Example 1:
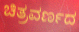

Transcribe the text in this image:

ಚಿತ್ರವರ್ಣದ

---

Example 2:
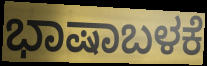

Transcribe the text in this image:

ಭಾಷಾಬಳಕೆ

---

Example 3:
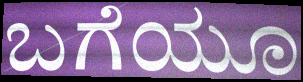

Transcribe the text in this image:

ಬಗೆಯೂ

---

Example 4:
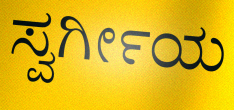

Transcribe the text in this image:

ಸ್ವರ್ಗೀಯ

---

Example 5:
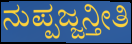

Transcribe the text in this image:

ನುಪ್ಪಜ್ಜನ್ತೀತಿ